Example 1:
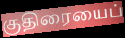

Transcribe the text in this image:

குதிரையைப்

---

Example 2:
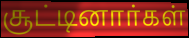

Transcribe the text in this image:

சூட்டினார்கள்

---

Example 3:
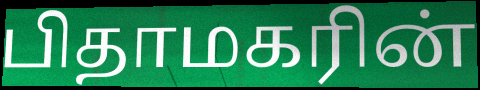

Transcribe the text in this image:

பிதாமகரின்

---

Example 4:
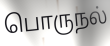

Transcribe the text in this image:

பொருநல்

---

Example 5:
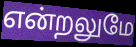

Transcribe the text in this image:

என்றலுமே